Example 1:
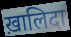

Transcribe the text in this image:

ख़ालिदा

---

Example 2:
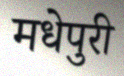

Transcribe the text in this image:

मधेपुरी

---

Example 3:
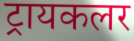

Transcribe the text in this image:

ट्रायकलर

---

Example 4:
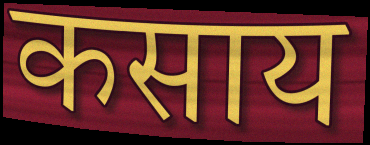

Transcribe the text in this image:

कसाय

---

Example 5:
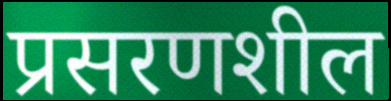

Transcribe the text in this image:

प्रसरणशील